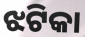
ଝଟିକା